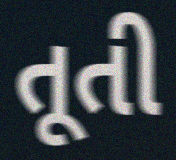
તૂતી